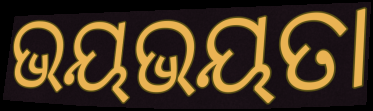
ଭୟଭୟତା